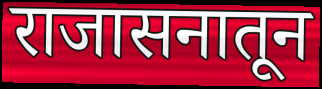
राजासनातून